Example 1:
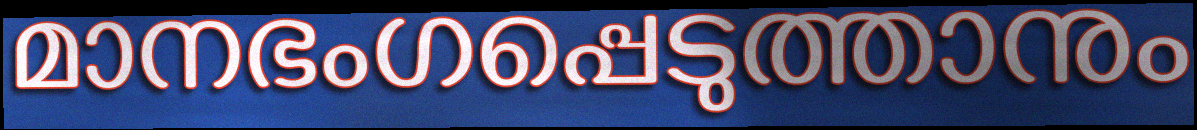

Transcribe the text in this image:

മാനഭംഗപ്പെടുത്താനും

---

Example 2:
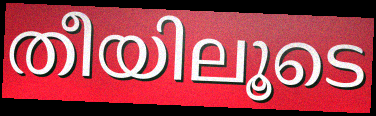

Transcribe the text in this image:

തീയിലൂടെ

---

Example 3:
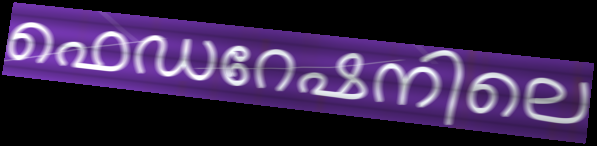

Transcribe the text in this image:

ഫെഡറേഷനിലെ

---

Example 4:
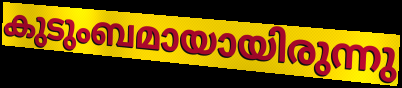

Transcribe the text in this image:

കുടുംബമായായിരുന്നു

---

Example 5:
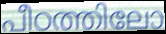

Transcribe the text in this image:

പീഠത്തിലോ